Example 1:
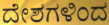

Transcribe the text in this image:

ದೇಶಗಳಿಂದ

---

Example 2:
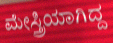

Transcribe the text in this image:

ಮೇಸ್ತ್ರಿಯಾಗಿದ್ದ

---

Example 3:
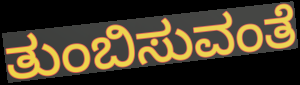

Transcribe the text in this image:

ತುಂಬಿಸುವಂತೆ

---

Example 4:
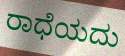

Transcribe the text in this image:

ರಾಧೆಯದು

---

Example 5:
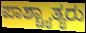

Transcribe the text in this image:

ಪಾಶ್ಚ್ಯಾತ್ಯರು